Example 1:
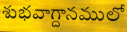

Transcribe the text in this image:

శుభవాగ్దానములో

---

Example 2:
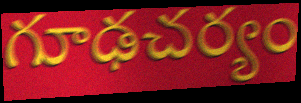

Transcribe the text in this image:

గూఢచర్యం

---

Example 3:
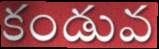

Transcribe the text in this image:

కండువ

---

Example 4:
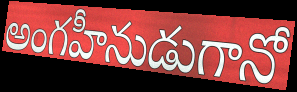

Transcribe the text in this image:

అంగహీనుడుగానో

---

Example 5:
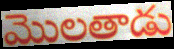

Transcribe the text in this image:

మొలతాడు